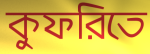
কুফরিতে